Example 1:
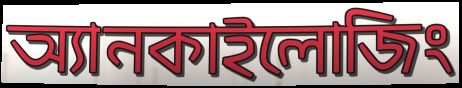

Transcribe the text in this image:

অ্যানকাইলোজিং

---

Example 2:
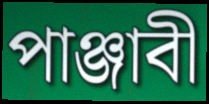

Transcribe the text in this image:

পাঞ্জাবী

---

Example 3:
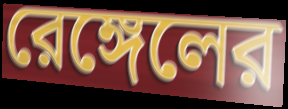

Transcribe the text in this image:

রেঙ্গেলের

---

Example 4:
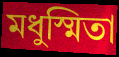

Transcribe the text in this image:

মধুস্মিতা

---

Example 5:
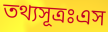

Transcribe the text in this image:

তথ্যসূত্রঃএস